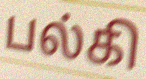
பல்கி